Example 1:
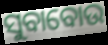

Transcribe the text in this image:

ସୁବାବୋଉ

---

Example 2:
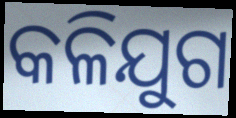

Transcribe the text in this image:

କଳିଯୁଗ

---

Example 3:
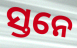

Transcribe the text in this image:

ସ୍ତନେ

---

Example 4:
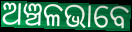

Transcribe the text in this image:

ଅଞ୍ଚଳଭାବେ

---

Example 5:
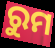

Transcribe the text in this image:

ରୁମ